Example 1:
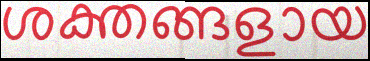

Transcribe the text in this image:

ശക്തങ്ങളായ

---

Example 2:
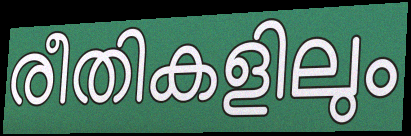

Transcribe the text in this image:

രീതികളിലും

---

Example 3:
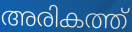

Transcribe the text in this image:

അരികത്ത്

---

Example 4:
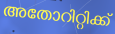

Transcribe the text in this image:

അതോറിറ്റിക്ക്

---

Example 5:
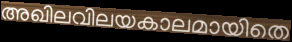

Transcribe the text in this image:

അഖിലവിലയകാലമായിതെ